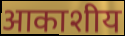
आकाशीय